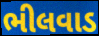
ભીલવાડ